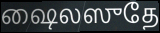
ஷைலஸுதே